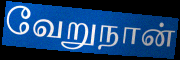
வேறுநான்